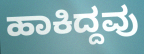
ಹಾಕಿದ್ದವು